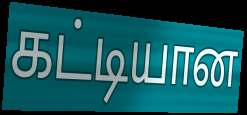
கட்டியான